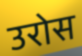
उरोस